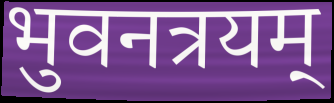
भुवनत्रयम्